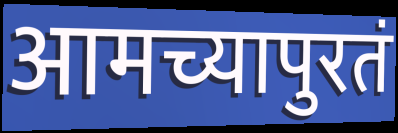
आमच्यापुरतं